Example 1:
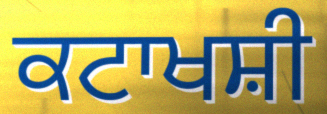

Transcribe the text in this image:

ਕਟਾਖਸ਼ੀ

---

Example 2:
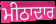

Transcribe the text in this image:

ਮੀਠਾਦਾਰ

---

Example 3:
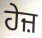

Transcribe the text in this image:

ਹੇਜ਼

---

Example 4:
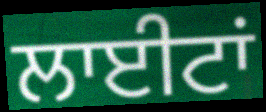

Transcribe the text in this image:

ਲਾਈਟਾਂ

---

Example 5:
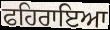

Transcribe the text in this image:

ਫਹਿਰਾਇਆ